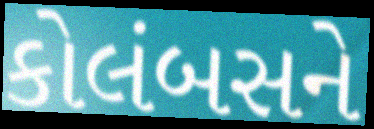
કોલંબસને